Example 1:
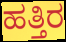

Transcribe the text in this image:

ಹತ್ತಿರ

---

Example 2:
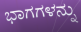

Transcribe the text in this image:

ಭಾಗಗಳನ್ನು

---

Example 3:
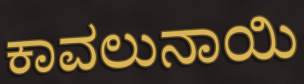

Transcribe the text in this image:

ಕಾವಲುನಾಯಿ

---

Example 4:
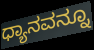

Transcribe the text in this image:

ಧ್ಯಾನವನ್ನೂ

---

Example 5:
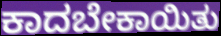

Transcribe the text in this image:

ಕಾದಬೇಕಾಯಿತು